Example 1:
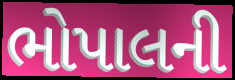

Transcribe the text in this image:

ભોપાલની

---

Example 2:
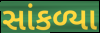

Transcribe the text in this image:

સાંકળ્યા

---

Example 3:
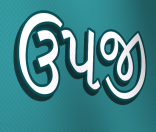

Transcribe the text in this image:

ઉપજી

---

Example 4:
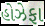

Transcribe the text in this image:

હોઝેફા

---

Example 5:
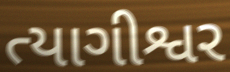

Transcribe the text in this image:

ત્યાગીશ્વર